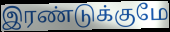
இரண்டுக்குமே